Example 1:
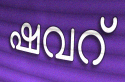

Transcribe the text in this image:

ഷവറ്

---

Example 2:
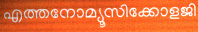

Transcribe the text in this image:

എത്തനോമ്യൂസിക്കോളജി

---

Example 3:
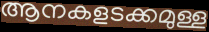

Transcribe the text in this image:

ആനകളടക്കമുള്ള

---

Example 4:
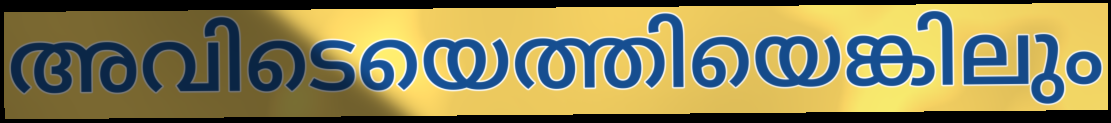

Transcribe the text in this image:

അവിടെയെത്തിയെങ്കിലും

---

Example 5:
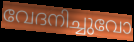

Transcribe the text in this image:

വേദനിച്ചുവോ